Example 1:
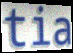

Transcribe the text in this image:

tia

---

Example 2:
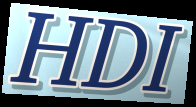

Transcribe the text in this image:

HDI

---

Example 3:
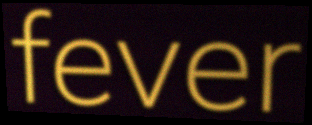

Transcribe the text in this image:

fever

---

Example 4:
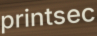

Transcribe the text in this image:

printsec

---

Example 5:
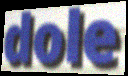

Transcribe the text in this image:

dole